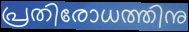
പ്രതിരോധത്തിനു